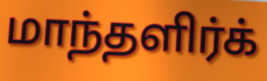
மாந்தளிர்க்